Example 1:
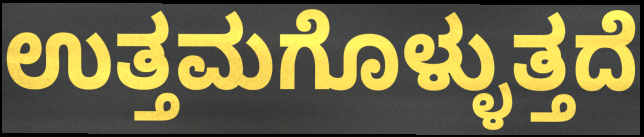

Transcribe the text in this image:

ಉತ್ತಮಗೊಳ್ಳುತ್ತದೆ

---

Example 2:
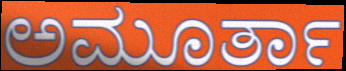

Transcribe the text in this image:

ಅಮೂರ್ತಾ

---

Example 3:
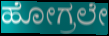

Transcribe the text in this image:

ಹೋಗ್ರಲೇ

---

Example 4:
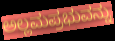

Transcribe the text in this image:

ಅಲ್ಲಮಪ್ರಭುವನ್ನು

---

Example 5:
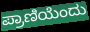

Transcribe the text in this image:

ಪ್ರಾಣಿಯೆಂದು